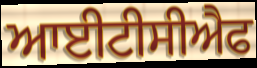
ਆਈਟੀਸੀਐਫ